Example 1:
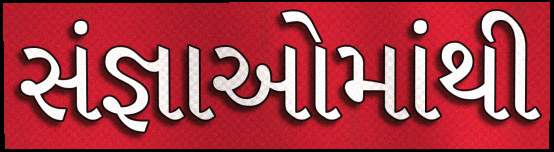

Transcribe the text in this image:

સંજ્ઞાઓમાંથી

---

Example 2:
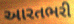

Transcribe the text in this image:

આરતભરી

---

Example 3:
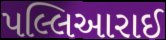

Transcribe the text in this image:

પલ્લિઆરાઈ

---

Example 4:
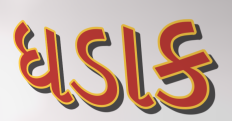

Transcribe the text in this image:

ધડાક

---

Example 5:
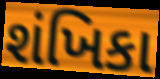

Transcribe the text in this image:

શંખિકા